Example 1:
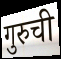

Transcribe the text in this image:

गुरुची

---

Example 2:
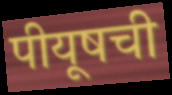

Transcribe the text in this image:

पीयूषची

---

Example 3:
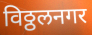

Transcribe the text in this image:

विठ्ठलनगर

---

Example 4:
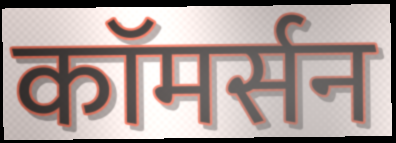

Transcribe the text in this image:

कॉमर्सन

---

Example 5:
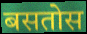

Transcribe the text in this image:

बसतोस